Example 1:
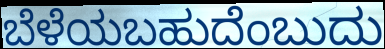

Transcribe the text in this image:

ಬೆಳೆಯಬಹುದೆಂಬುದು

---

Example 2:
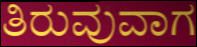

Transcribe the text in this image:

ತಿರುವುವಾಗ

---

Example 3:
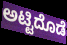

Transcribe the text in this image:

ಅಟ್ಟಿದೊಡೆ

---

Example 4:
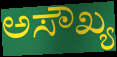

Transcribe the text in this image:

ಅಸೌಖ್ಯ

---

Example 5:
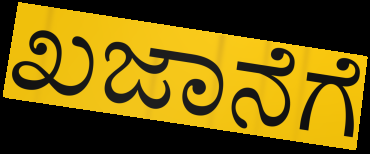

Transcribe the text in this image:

ಖಜಾನೆಗೆ